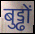
बुड्ढों